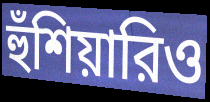
হুঁশিয়ারিও